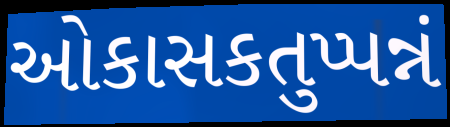
ઓકાસકતુપ્પન્નં